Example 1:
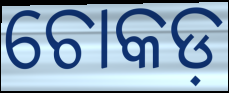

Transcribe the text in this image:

ଚୋକଡ଼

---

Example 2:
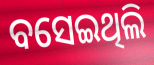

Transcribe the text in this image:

ବସେଇଥିଲି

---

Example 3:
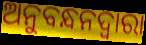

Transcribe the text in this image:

ଅନୁବନ୍ଧନଦ୍ୱାରା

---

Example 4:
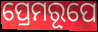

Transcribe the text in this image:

ପ୍ରେମରୂପେ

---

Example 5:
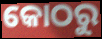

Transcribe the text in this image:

କୋଠରୁ